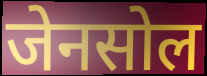
जेनसोल